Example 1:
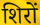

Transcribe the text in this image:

शिरों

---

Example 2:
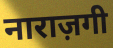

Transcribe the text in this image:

नाराज़गी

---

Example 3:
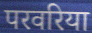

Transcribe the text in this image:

परवरिया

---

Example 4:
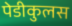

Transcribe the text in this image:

पेडीकुलस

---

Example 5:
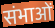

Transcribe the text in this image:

संभाओं